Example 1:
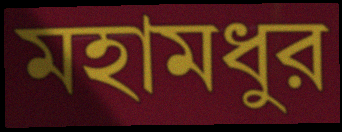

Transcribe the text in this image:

মহামধুর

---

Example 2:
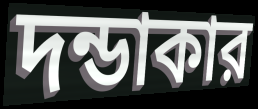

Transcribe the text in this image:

দন্ডাকার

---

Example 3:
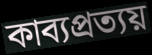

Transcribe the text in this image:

কাব্যপ্রত্যয়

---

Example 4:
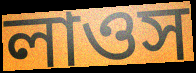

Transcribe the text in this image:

লাওস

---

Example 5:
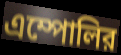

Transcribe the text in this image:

এম্পোলির